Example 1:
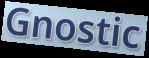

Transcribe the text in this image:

Gnostic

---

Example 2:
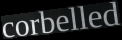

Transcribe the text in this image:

corbelled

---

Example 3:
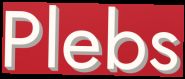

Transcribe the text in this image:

Plebs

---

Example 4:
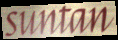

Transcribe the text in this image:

suntan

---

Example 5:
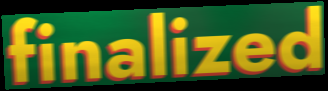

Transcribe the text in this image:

finalized